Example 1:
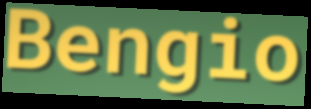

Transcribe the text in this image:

Bengio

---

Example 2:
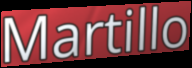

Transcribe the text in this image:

Martillo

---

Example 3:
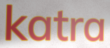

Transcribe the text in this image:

katra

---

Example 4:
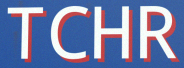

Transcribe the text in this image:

TCHR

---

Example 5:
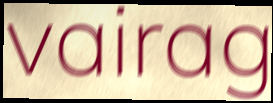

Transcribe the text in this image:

vairag